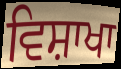
ਵਿਸ਼ਾਖਾ